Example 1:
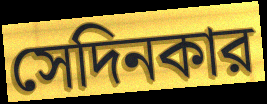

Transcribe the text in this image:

সেদিনকার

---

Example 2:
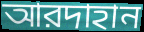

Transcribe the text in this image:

আরদাহান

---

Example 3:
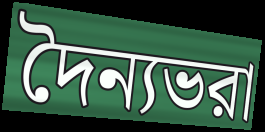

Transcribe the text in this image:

দৈন্যভরা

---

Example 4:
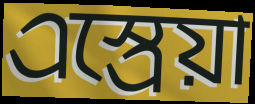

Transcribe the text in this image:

এস্ত্রেয়া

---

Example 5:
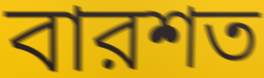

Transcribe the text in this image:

বারশত